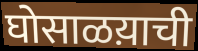
घोसाळय़ाची